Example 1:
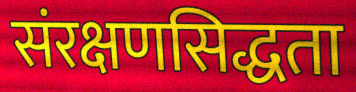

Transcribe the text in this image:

संरक्षणसिद्धता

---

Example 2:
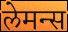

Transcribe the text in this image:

लेमन्स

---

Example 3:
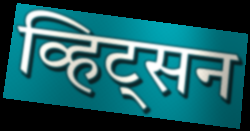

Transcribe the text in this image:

व्हिट्सन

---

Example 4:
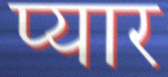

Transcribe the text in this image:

प्यार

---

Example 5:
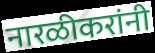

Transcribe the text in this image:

नारळीकरांनी